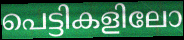
പെട്ടികളിലോ